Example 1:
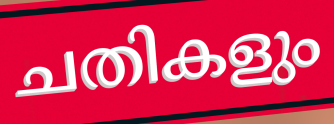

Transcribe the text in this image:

ചതികളും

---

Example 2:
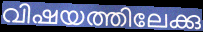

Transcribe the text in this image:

വിഷയത്തിലേക്കു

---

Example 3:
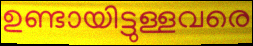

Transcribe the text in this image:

ഉണ്ടായിട്ടുള്ളവരെ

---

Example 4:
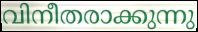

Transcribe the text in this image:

വിനീതരാക്കുന്നു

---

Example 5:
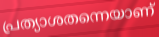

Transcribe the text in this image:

പ്രത്യാശതന്നെയാണ്